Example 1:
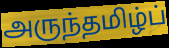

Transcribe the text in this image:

அருந்தமிழ்ப்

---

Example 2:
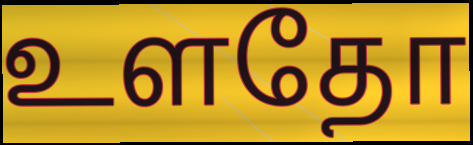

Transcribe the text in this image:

உளதோ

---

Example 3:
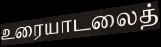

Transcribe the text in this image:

உரையாடலைத்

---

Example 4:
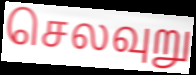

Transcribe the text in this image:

செலவுறு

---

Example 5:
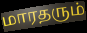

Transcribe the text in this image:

மாரதரும்